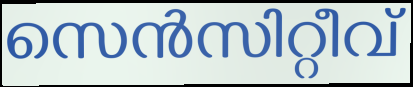
സെൻസിറ്റീവ്